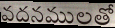
వదనములతో